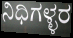
ನಿಧಿಗಳ್ಳರ